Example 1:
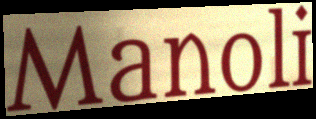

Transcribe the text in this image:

Manoli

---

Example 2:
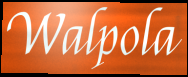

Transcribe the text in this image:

Walpola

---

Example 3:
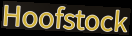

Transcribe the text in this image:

Hoofstock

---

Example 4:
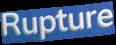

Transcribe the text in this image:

Rupture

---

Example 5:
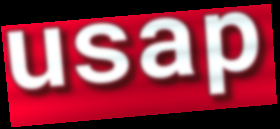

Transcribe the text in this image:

usap